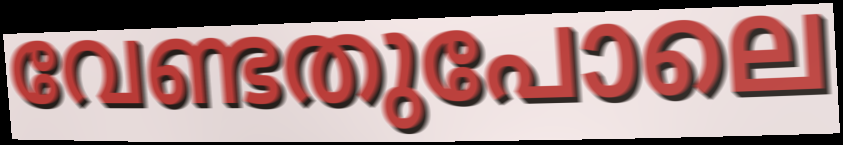
വേണ്ടതുപോലെ